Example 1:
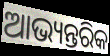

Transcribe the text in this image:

ଆଭ୍ୟନ୍ତରିକ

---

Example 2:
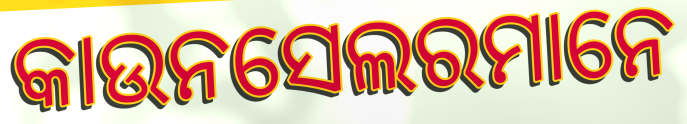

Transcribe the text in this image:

କାଉନସେଲରମାନେ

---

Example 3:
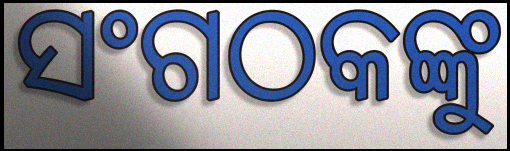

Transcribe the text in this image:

ସଂଗଠକଙ୍କୁ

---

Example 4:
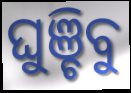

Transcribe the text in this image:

ଘୁଞ୍ଚିବୁ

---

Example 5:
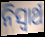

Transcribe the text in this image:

ନିସ୍ୱାର୍ଥ